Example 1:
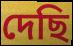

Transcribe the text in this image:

দেছি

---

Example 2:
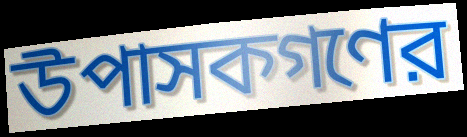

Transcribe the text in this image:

উপাসকগণের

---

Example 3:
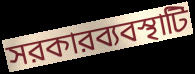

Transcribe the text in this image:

সরকারব্যবস্থাটি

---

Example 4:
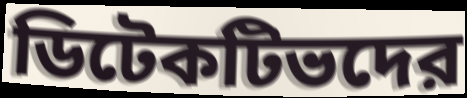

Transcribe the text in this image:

ডিটেকটিভদের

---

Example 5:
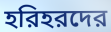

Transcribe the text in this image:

হরিহরদের